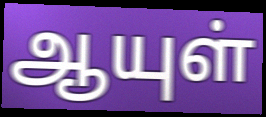
ஆயுள்